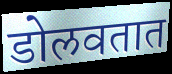
डोलवतात